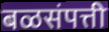
बळसंपत्ती